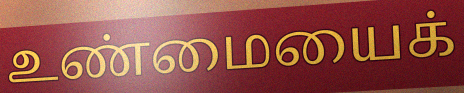
உண்மையைக்